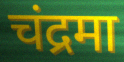
चंद्रमा